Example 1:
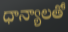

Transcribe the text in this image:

ధాన్యాలతో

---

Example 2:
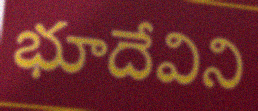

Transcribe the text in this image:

భూదేవిని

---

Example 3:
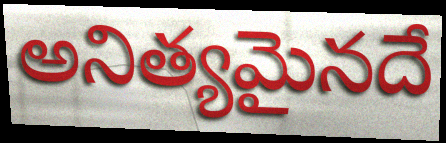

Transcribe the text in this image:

అనిత్యమైనదే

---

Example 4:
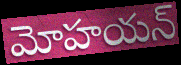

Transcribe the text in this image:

మోహయన్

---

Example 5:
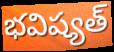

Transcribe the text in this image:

భవిష్యత్